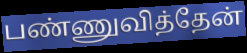
பண்ணுவித்தேன்